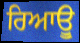
ਰਿਆਊ